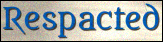
Respacted